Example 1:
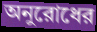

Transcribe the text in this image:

অনুরোধের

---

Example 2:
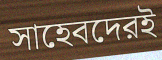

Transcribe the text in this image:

সাহেবদেরই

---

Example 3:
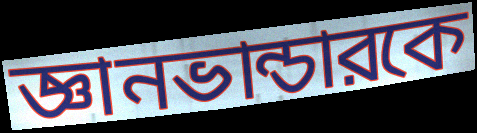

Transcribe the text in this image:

জ্ঞানভান্ডারকে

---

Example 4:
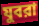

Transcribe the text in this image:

যুবরা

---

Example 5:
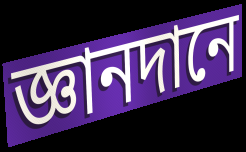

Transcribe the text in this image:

জ্ঞানদানে